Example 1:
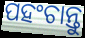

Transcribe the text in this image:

ପହଂଚାନ୍ତୁ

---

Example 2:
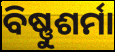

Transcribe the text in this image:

ବିଷ୍ଣୁଶର୍ମା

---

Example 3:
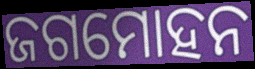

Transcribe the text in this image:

ଜଗମୋହନ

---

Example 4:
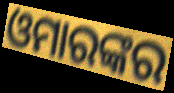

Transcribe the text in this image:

ଓମାରଙ୍କର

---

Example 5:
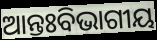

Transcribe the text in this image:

ଆନ୍ତଃବିଭାଗୀୟ